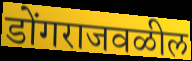
डोंगराजवळील